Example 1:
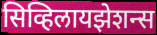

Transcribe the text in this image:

सिव्हिलायझेशन्स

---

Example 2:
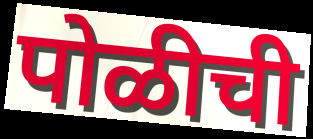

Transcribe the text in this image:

पोळीची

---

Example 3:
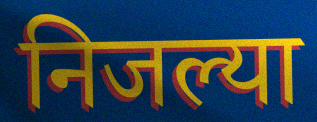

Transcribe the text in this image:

निजल्या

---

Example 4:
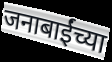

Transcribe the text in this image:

जनाबाईंच्या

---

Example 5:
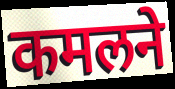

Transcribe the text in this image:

कमलने